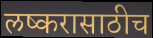
लष्करासाठीच